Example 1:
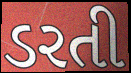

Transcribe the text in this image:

ડરતી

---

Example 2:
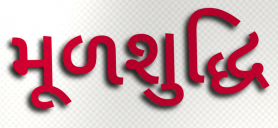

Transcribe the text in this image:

મૂળશુદ્ધિ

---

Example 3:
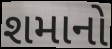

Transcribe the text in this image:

શમાનો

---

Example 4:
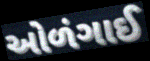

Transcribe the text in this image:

ઓળંગાઈ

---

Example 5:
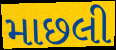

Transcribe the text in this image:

માછલી